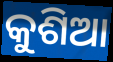
କୁଶିଆ